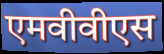
एमवीवीएस